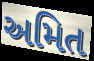
અમિત